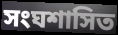
সংঘশাসিত